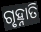
ଗୃହ୍ନାତି